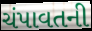
ચંપાવતની